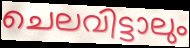
ചെലവിട്ടാലും